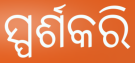
ସ୍ପର୍ଶକରି